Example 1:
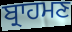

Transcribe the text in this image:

ਬ੍ਰਾਹਮਣ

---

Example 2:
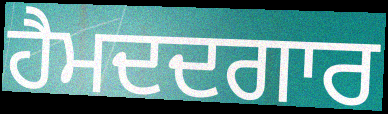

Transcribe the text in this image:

ਹੈਮਦਦਗਾਰ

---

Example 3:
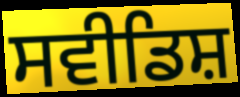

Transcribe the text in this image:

ਸਵੀਡਿਸ਼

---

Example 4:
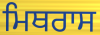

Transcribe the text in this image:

ਮਿਥਰਾਸ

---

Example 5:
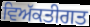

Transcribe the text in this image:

ਵਿਅੱਕਤੀਗਤ